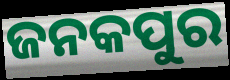
ଜନକପୁର